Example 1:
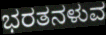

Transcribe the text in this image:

ಭರತನಳುವ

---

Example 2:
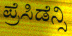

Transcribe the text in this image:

ಪ್ರೆಸಿಡೆನ್ಸಿ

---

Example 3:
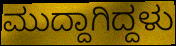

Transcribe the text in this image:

ಮುದ್ದಾಗಿದ್ದಳು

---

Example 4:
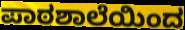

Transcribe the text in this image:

ಪಾಠಶಾಲೆಯಿಂದ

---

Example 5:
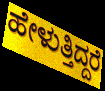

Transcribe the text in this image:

ಹೇಳುತ್ತಿದ್ದರೆ